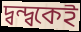
দ্বন্দ্বকেই